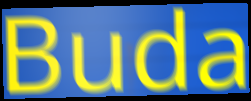
Buda